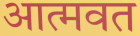
आत्मवत